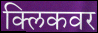
क्लिकवर